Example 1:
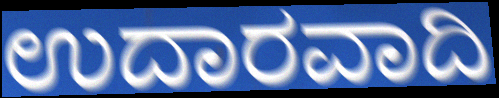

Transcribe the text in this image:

ಉದಾರವಾದಿ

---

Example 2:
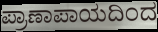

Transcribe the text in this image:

ಪ್ರಾಣಾಪಾಯದಿಂದ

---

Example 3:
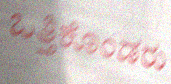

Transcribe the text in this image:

ಒತ್ತಿಕೊಂಡರು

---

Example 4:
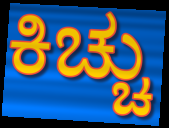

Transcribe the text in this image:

ಕಿಚ್ಚು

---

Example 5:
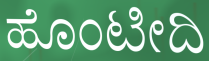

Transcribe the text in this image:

ಹೊಂಟೀದಿ